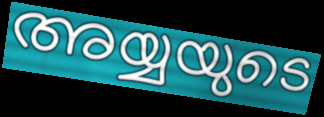
അയ്യയുടെ